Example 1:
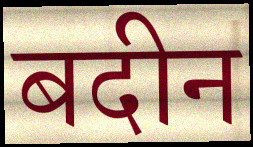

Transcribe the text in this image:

बदीन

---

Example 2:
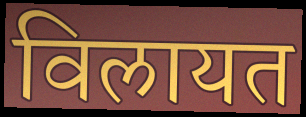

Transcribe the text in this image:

विलायत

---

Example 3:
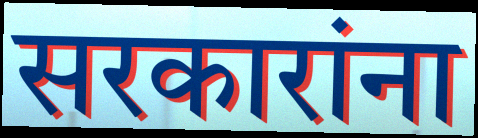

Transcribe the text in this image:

सरकारांना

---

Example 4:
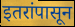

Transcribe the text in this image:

इतरांपासून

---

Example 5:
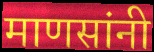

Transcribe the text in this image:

माणसांनी